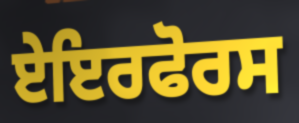
ਏਇਰਫੋਰਸ